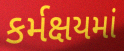
કર્મક્ષયમાં